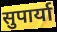
सुपार्या